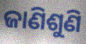
ଜାଣିଶୁଣି